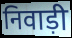
निवाड़ी